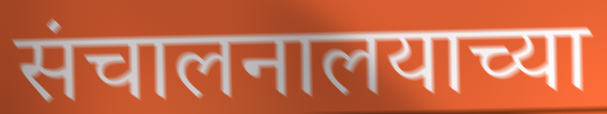
संचालनालयाच्या